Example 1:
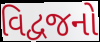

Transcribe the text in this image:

વિદ્વજનો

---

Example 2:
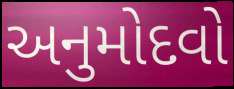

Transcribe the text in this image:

અનુમોદવો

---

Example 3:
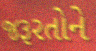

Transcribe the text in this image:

જરૂરતોને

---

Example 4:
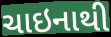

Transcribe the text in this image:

ચાઇનાથી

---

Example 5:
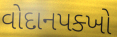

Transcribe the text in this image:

વોદાનપક્ખો